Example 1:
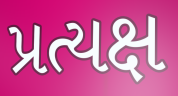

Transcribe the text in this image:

પ્રત્યક્ષ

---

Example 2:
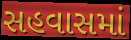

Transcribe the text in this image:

સહવાસમાં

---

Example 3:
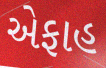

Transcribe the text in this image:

એફાહ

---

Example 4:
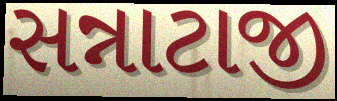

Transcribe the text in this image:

સન્નાટાજી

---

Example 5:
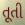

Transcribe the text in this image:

તૂતી